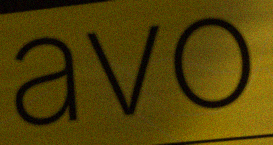
avo